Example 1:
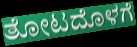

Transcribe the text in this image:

ತೋಟದೊಳಗೆ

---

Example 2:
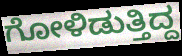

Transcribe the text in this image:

ಗೋಳಿಡುತ್ತಿದ್ದ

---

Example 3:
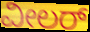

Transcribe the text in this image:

ವೀಲರ್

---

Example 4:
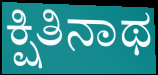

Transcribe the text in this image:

ಕ್ಷಿತಿನಾಥ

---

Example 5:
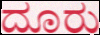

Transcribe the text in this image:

ದೂರು